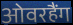
ओवरहैंग